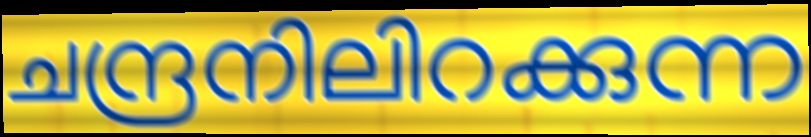
ചന്ദ്രനിലിറക്കുന്ന